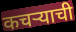
कचर्‍याची